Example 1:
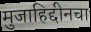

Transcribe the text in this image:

मुजाहिद्दीनचा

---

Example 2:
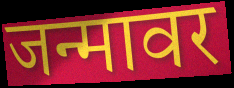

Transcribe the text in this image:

जन्मावर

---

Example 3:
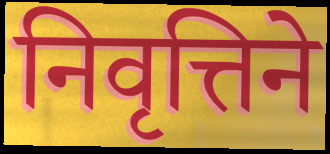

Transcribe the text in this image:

निवृत्तिने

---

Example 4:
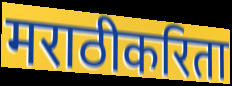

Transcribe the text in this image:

मराठीकरिता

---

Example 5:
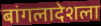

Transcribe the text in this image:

बांगलादेशला